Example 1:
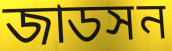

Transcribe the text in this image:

জাডসন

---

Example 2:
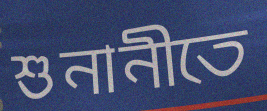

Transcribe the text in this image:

শুনানীতে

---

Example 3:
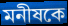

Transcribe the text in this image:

মনীষকে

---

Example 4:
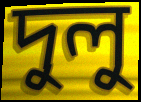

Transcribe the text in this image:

দুলু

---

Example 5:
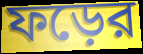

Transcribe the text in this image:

ফড়ের